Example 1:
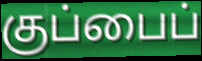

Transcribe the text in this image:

குப்பைப்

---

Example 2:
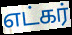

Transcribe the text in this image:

எட்கர்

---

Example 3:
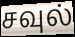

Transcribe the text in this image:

சவுல்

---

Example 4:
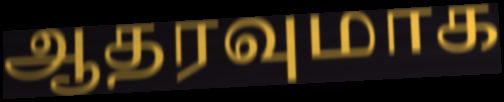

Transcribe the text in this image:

ஆதரவுமாக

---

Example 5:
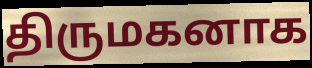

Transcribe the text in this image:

திருமகனாக